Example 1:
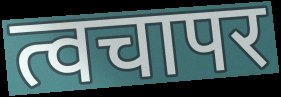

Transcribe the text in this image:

त्वचापर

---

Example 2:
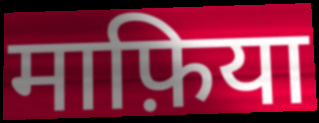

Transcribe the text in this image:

माफ़िया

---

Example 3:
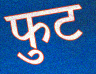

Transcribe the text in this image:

फुट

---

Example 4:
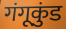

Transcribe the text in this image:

गंगूकुंड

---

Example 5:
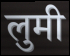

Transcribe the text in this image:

लुमी